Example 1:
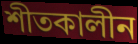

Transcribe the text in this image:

শীতকালীন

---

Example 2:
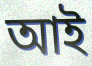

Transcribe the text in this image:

আই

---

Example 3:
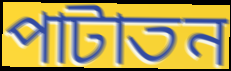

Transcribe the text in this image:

পাটাতন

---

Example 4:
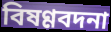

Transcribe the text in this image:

বিষণ্ণবদনা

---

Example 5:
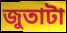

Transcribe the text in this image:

জুতাটা